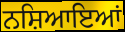
ਨਸ਼ਿਆਇਆਂ